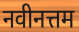
नवीनत्तम